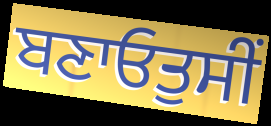
ਬਣਾਓਤੁਸੀਂ